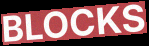
BLOCKS